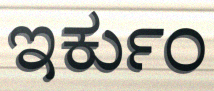
ಇರ್ಕುಂ